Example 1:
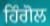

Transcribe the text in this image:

ਹਿੰਗੋਲ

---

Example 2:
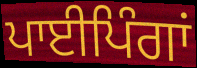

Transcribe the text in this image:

ਪਾਈਪਿੰਗਾਂ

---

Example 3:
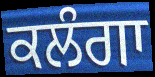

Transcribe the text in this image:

ਕਲੰਗਾ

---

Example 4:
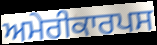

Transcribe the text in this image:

ਅਮੇਰੀਕਾਰਪਸ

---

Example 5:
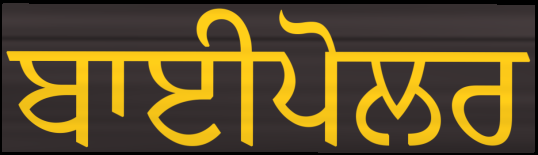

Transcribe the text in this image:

ਬਾਈਪੋਲਰ